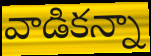
వాడికన్నా